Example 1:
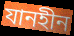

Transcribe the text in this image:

যানহীন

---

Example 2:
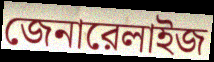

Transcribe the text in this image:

জেনারেলাইজ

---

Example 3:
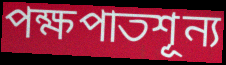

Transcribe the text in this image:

পক্ষপাতশূন্য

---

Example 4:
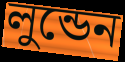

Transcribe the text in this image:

লুন্ডেন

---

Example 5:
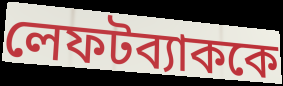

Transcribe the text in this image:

লেফটব্যাককে